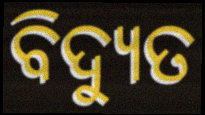
ବିଦ୍ୟୁତ